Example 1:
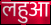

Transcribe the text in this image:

लहुआ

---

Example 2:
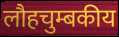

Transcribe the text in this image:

लौहचुम्बकीय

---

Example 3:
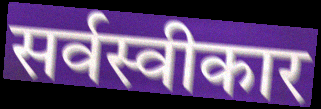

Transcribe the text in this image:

सर्वस्वीकार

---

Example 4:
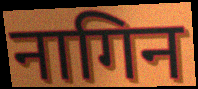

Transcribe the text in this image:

नागिन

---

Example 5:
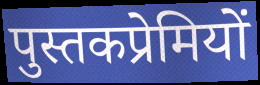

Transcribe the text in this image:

पुस्तकप्रेमियों